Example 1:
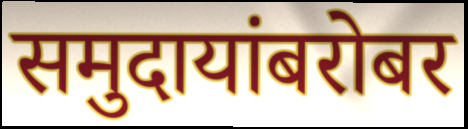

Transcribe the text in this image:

समुदायांबरोबर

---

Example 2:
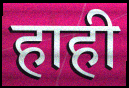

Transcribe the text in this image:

हाही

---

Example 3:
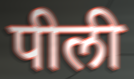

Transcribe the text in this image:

पीली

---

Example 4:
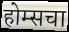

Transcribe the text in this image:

होम्सचा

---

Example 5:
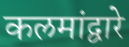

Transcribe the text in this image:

कलमांद्वारे